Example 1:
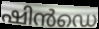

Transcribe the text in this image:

ഷിൻഡെ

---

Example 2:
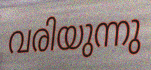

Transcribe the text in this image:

വരിയുന്നു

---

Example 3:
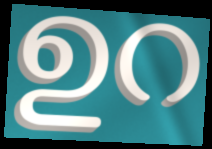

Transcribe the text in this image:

ഉറ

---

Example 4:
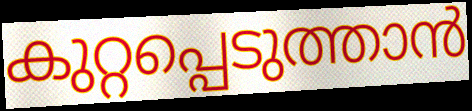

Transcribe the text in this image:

കുറ്റപ്പെടുത്താൻ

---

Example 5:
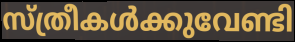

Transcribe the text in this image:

സ്ത്രീകൾക്കുവേണ്ടി